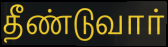
தீண்டுவார்